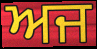
ਅਜ